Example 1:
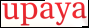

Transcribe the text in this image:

upaya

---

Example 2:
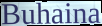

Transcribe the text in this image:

Buhaina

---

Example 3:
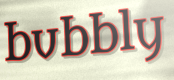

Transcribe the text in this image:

bubbly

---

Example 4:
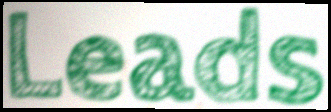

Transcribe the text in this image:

Leads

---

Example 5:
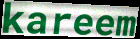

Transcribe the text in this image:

kareem